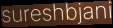
sureshbjani